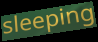
sleeping